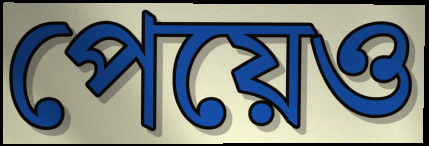
পেয়েও